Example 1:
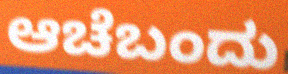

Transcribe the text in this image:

ಆಚೆಬಂದು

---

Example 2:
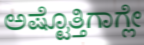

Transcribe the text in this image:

ಅಷ್ಟೊತ್ತಿಗಾಗ್ಲೇ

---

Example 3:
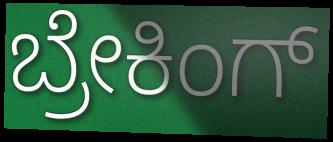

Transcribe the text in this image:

ಬ್ರೇಕಿಂಗ್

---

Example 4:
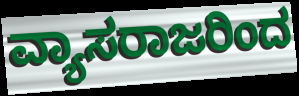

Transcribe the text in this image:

ವ್ಯಾಸರಾಜರಿಂದ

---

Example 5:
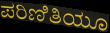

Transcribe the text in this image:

ಪರಿಣಿತಿಯೂ